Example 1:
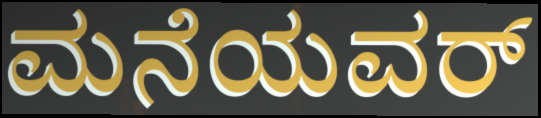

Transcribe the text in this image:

ಮನೆಯವರ್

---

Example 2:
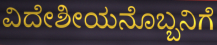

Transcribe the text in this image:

ವಿದೇಶೀಯನೊಬ್ಬನಿಗೆ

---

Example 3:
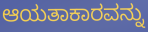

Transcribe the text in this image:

ಆಯತಾಕಾರವನ್ನು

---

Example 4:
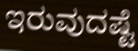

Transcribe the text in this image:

ಇರುವುದಷ್ಟೆ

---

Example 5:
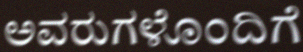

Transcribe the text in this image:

ಅವರುಗಳೊಂದಿಗೆ